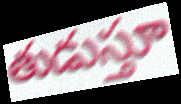
తుడుస్తూ